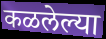
कळलेल्या